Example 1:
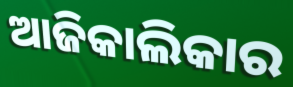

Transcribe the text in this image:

ଆଜିକାଲିକାର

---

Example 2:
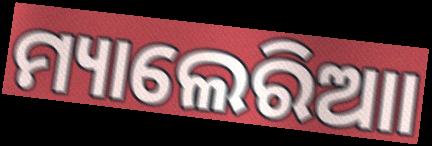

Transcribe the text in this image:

ମ୍ୟାଲେରିଆା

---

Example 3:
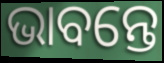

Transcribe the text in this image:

ଭାବନ୍ତେ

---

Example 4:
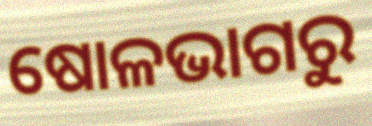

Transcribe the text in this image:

ଷୋଳଭାଗରୁ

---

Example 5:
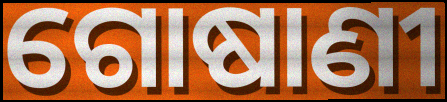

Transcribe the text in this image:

ଗୋଷାଣୀ